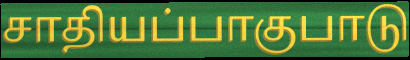
சாதியப்பாகுபாடு